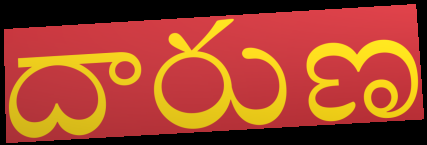
దారుణ